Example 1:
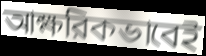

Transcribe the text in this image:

আক্ষরিকভাবেই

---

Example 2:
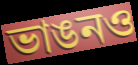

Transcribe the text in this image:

ভাঙনও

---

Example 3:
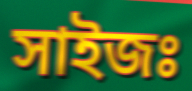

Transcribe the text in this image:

সাইজঃ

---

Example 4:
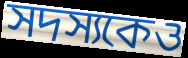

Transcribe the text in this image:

সদস্যকেও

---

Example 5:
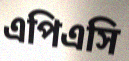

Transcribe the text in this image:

এপিএসি